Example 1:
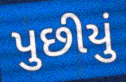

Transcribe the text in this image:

પુછીયું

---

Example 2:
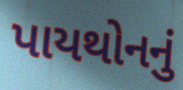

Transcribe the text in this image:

પાયથોનનું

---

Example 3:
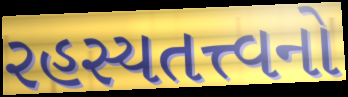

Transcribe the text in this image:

રહસ્યતત્ત્વનો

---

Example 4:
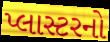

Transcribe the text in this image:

પ્લાસ્ટરનો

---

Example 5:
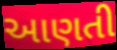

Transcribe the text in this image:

આણતી